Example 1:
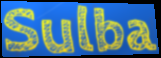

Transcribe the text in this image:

Sulba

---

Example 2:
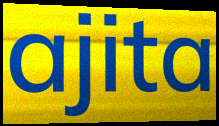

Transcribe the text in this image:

ajita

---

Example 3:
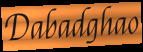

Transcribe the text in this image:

Dabadghao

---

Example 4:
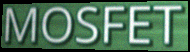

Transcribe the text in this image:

MOSFET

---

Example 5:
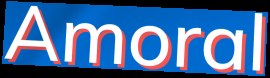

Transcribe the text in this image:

Amoral